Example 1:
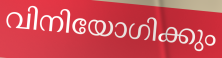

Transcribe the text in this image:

വിനിയോഗിക്കും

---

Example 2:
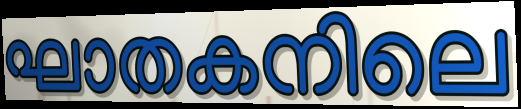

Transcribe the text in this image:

ഘാതകനിലെ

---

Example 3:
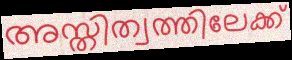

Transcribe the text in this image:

അസ്തിത്വത്തിലേക്ക്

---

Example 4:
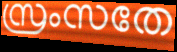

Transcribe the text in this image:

സ്രംസതേ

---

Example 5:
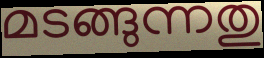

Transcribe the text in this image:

മടങ്ങുന്നതു